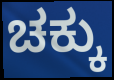
ಚಕ್ಕು